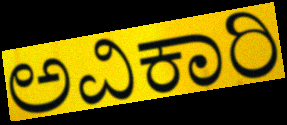
ಅವಿಕಾರಿ